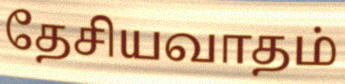
தேசியவாதம்